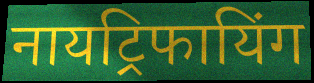
नायट्रिफायिंग